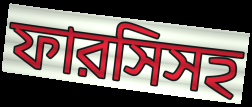
ফারসিসহ